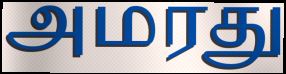
அமரது